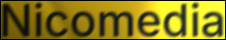
Nicomedia